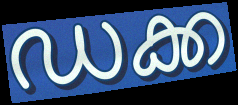
ഡക്ക